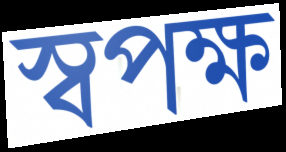
স্বপক্ষ